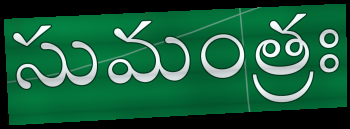
సుమంత్రః